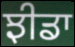
ਝੀਡਾ